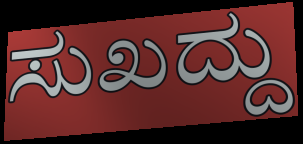
ಸುಖದ್ದು